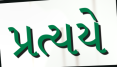
પ્રત્યયે